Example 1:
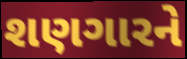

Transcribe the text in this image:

શણગારને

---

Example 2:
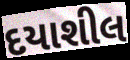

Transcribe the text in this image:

દયાશીલ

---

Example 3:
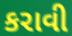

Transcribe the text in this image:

કરાવી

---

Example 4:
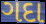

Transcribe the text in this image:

ગદા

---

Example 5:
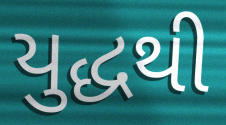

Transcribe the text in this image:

યુદ્ધથી